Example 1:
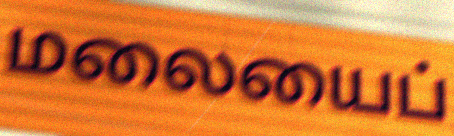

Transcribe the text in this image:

மலையைப்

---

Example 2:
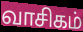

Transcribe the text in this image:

வாசிகம்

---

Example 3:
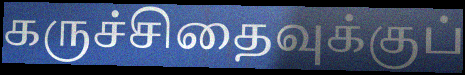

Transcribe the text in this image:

கருச்சிதைவுக்குப்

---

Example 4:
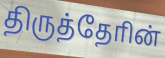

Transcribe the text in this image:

திருத்தேரின்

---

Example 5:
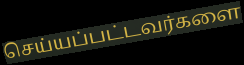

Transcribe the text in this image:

செய்யப்பட்டவர்களை